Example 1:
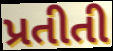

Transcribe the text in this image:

પ્રતીતી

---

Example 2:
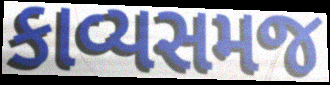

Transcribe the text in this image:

કાવ્યસમજ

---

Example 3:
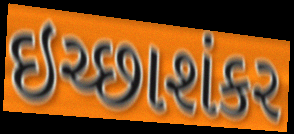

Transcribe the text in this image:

ઇચ્છાશંકર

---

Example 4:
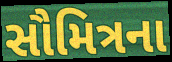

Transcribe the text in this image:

સૌમિત્રના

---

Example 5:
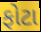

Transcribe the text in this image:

ફોટા